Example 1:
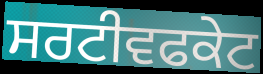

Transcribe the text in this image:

ਸਰਟੀਵਫਕੇਟ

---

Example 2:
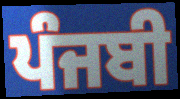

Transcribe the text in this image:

ਪੰਜਬੀ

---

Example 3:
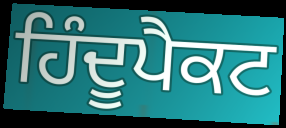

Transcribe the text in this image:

ਹਿੰਦੂਪੈਕਟ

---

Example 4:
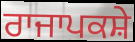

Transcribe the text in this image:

ਰਾਜਾਪਕਸ਼ੇ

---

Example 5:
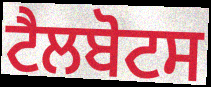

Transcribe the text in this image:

ਟੈਲਬੋਟਸ